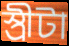
স্ত্রীটা